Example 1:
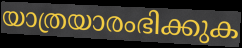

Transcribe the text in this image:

യാത്രയാരംഭിക്കുക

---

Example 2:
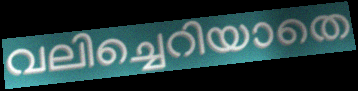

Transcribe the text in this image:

വലിച്ചെറിയാതെ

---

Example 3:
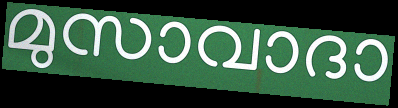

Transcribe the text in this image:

മുസാവാദാ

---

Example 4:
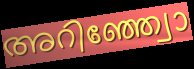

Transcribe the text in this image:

അറിഞ്ഞ്വോ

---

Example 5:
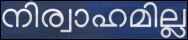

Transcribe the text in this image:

നിര്വാഹമില്ല